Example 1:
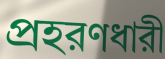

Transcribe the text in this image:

প্রহরণধারী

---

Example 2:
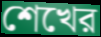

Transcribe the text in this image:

শেখের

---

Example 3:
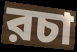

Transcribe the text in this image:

রচা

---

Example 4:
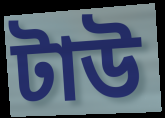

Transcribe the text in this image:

টাউ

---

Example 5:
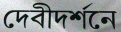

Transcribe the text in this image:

দেবীদর্শনে